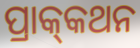
ପ୍ରାକ୍‍କଥନ